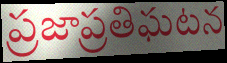
ప్రజాప్రతిఘటన